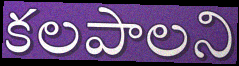
కలపాలని